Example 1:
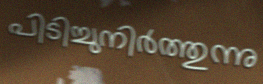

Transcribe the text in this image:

പിടിച്ചുനിർത്തുന്നു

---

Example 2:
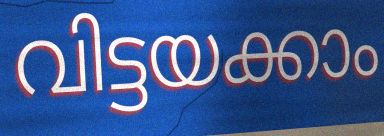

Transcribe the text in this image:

വിട്ടയക്കാം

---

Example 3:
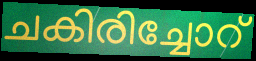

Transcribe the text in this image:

ചകിരിച്ചോറ്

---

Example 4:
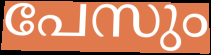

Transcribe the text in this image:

പേസും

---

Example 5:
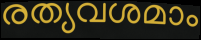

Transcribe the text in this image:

രത്യവശമാം